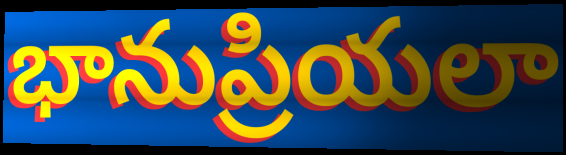
భానుప్రియలా